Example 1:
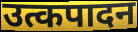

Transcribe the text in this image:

उत्कपादन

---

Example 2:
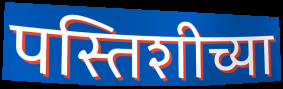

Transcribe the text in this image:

पस्तिशीच्या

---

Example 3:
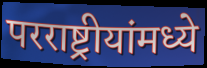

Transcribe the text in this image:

परराष्ट्रीयांमध्ये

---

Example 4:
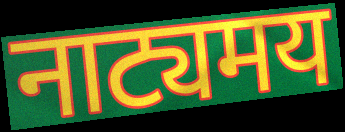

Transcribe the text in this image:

नाट्यमय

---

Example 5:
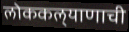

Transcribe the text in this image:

लोककल्याणाची